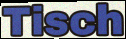
Tisch